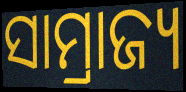
ସାମ୍ରାଜ୍ୟ